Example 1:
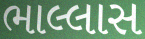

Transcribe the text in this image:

ભાલ્લાસ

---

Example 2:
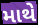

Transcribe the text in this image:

માથે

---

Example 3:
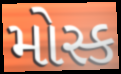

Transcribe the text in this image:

મોસ્ક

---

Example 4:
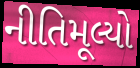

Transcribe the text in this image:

નીતિમૂલ્યો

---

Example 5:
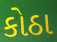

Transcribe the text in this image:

કોઠા